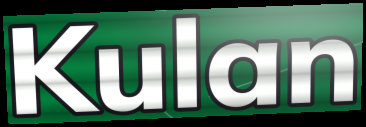
Kulan